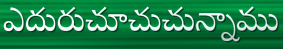
ఎదురుచూచుచున్నాము